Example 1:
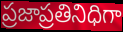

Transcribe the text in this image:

ప్రజాప్రతినిధిగా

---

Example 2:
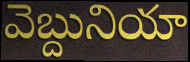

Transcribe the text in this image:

వెబ్దునియా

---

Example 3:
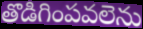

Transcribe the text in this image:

తొడిగింపవలెను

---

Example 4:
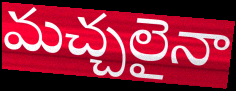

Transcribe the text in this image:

మచ్చలైనా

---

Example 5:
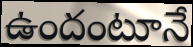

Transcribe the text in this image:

ఉందంటూనే